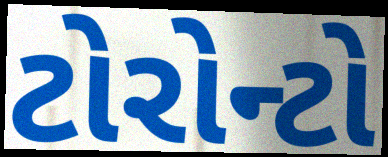
ટોરોન્ટો